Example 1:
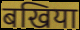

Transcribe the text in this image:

बखिया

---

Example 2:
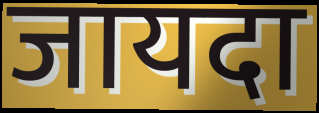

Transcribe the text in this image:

जायदा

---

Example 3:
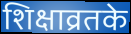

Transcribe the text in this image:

शिक्षाव्रतके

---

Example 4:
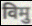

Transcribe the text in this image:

विमु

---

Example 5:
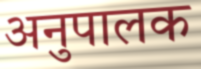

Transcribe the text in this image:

अनुपालक